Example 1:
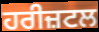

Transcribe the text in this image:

ਹਰੀਜ਼ਟਲ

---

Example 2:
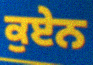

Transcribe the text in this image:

ਕੁਏਨ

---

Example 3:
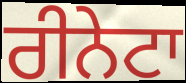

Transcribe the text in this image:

ਰੀਨੇਟਾ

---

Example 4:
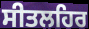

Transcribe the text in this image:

ਸੀਤਲਹਿਰ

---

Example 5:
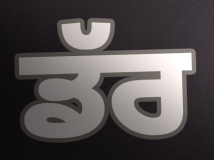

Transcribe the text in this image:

ਡੱਰ